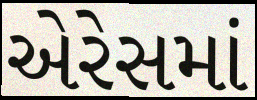
એરેસમાં